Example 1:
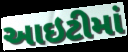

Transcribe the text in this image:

આઇટીમાં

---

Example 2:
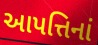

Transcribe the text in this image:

આપત્તિનાં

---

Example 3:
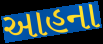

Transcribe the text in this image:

આહના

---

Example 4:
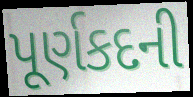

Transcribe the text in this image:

પૂર્ણકદની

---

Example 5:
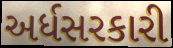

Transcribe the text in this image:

અર્ધસરકારી